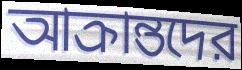
আক্রান্তদের